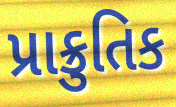
પ્રાક્રુતિક